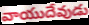
వాయుదేవుడు